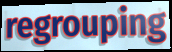
regrouping